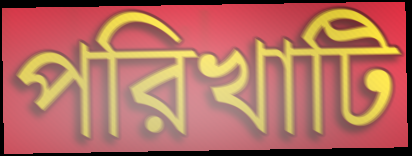
পরিখাটি